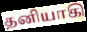
தனியாகி